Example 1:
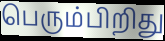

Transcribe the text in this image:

பெரும்பிறிது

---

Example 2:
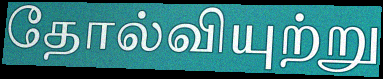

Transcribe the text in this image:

தோல்வியுற்று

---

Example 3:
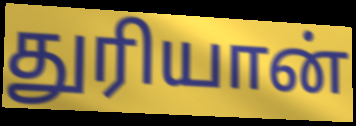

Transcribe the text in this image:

துரியான்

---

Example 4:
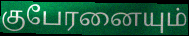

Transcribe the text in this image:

குபேரனையும்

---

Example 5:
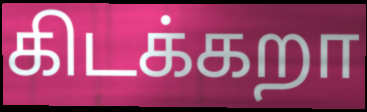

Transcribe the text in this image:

கிடக்கறா